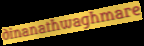
dinanathwaghmare